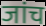
जांच